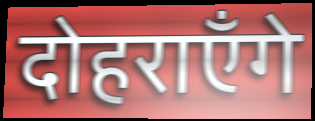
दोहराएँगे